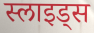
स्लाइड्स